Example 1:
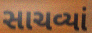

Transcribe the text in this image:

સાચવ્યાં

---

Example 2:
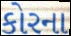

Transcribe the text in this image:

કોરના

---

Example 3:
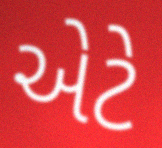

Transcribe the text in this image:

એટે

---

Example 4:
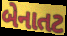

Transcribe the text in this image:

બેનાતટ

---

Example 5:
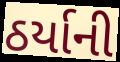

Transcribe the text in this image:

ઠર્યાની